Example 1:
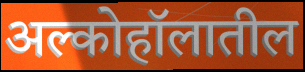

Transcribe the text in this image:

अल्कोहॉलातील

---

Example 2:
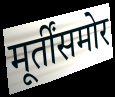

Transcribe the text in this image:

मूर्तींसमोर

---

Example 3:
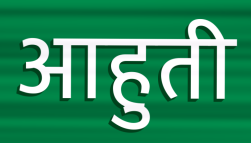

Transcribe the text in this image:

आहुती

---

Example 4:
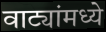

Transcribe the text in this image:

वाट्यांमध्ये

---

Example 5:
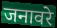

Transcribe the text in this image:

जनावरे